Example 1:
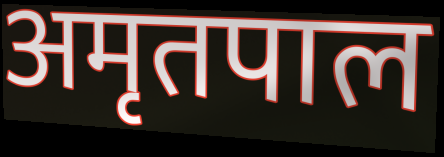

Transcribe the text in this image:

अमृतपाल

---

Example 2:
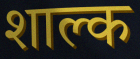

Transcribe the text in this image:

शाल्क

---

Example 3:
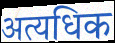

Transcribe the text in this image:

अत्यधिक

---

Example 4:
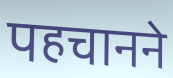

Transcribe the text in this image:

पहचानने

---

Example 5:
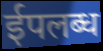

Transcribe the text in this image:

ईपलब्ध